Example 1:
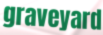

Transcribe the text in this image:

graveyard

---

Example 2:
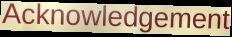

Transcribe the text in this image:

Acknowledgement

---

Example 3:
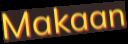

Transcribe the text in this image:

Makaan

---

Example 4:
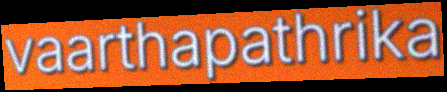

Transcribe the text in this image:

vaarthapathrika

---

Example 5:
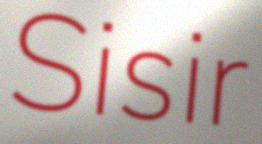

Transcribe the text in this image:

Sisir